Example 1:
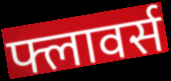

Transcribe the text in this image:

फ्लावर्स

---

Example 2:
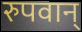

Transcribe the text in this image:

रुपवान्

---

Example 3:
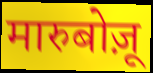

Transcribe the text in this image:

मारुबोज़ू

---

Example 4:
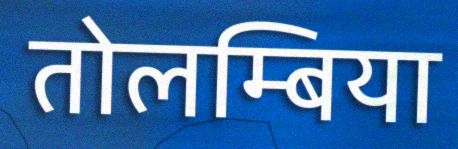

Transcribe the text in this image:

तोलम्बिया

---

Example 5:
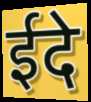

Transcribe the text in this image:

ईदे